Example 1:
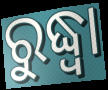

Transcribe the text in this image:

ରୁଦ୍ଧ୍ୱା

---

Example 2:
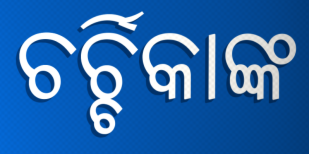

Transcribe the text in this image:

ଚର୍ଚ୍ଚିକାଙ୍କ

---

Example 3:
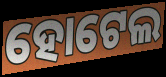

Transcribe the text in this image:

ହୋଟେଲ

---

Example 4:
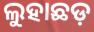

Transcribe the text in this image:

ଲୁହାଛଡ଼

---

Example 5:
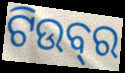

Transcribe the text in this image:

ଟିଉବ୍‍ର